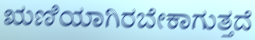
ಋಣಿಯಾಗಿರಬೇಕಾಗುತ್ತದೆ